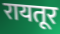
रायतूर